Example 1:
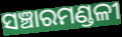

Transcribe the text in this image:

ସଞ୍ଚାରମଣ୍ଡଳୀ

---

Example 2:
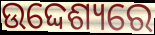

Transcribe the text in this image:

ଉଦ୍ଦେଶ୍ୟରେ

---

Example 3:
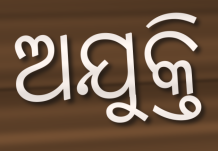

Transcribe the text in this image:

ଅଯୁକ୍ତି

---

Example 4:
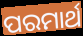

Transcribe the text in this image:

ପରମାର୍ଥ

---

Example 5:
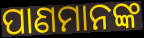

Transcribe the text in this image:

ପାଣମାନଙ୍କ